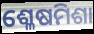
ଶ୍ଳେଷମିଶା